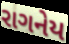
રાગનેય